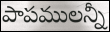
పాపములన్నీ